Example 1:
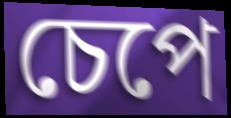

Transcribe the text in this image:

চেপে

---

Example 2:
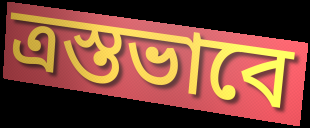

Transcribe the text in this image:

ত্রস্তভাবে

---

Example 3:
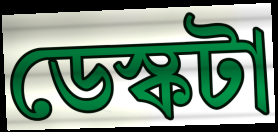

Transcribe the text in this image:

ডেস্কটা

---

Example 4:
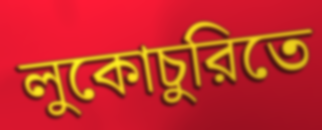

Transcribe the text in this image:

লুকোচুরিতে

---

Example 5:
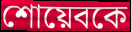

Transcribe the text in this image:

শোয়েবকে